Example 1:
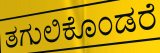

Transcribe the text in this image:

ತಗುಲಿಕೊಂಡರೆ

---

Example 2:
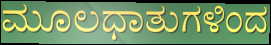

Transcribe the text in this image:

ಮೂಲಧಾತುಗಳಿಂದ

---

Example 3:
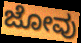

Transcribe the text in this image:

ಜೋವು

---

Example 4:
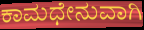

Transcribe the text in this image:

ಕಾಮಧೇನುವಾಗಿ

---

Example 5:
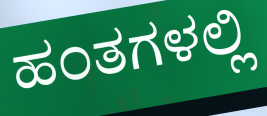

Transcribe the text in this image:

ಹಂತಗಳಲ್ಲಿ